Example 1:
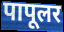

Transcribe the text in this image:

पापूलर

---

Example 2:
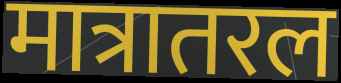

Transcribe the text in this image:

मात्रातरल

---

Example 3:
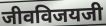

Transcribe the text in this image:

जीवविजयजी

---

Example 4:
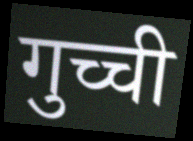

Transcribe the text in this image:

गुच्ची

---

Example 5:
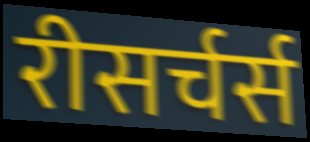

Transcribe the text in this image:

रीसर्चर्स